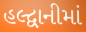
હલ્દ્વાનીમાં